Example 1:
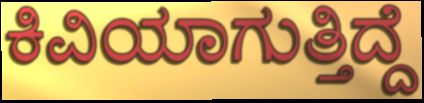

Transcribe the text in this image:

ಕಿವಿಯಾಗುತ್ತಿದ್ದೆ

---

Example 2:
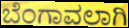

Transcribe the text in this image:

ಬೆಂಗಾವಲಾಗಿ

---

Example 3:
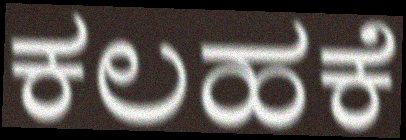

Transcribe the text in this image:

ಕಲಹಕೆ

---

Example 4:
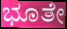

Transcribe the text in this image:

ಭೂತೇ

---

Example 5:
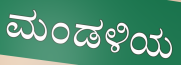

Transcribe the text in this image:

ಮಂಡಳಿಯ